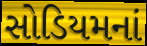
સોડિયમનાં